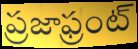
ప్రజాఫ్రంట్